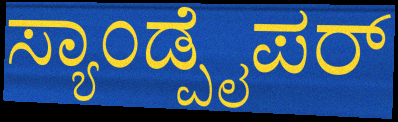
ಸ್ಯಾಂಡ್ಪೈಪರ್